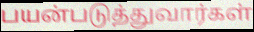
பயன்படுத்துவார்கள்